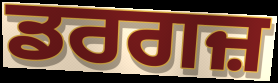
ਡਰਗਜ਼